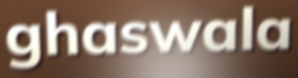
ghaswala